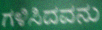
ಗಳಿಸಿದವನು